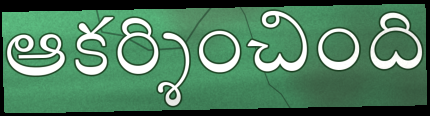
ఆకర్శించింది